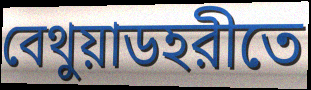
বেথুয়াডহরীতে